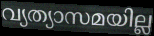
വ്യത്യാസമയില്ല